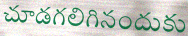
చూడగలిగినందుకు